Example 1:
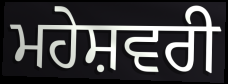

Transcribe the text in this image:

ਮਹੇਸ਼ਵਰੀ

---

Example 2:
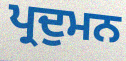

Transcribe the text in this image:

ਪ੍ਰਦੁਮਨ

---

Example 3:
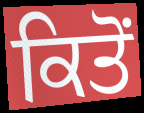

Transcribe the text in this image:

ਕਿਤੋਂ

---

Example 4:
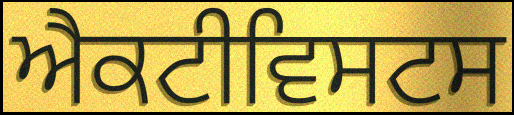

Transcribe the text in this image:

ਐਕਟੀਵਿਸਟਸ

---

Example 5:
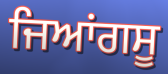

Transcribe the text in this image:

ਜਿਆਂਗਸੂ